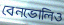
বেনভোলিও